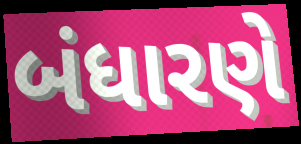
બંધારણે